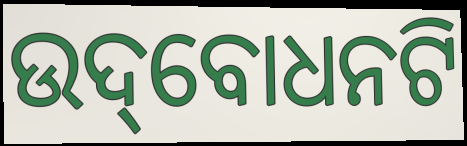
ଉଦ୍‌ବୋଧନଟି